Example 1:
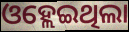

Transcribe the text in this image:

ଓହ୍ଲେଇଥିଲା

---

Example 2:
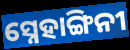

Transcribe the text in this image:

ସ୍ନେହାଙ୍ଗିନୀ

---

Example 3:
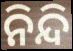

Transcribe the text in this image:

ନିନ୍ଦି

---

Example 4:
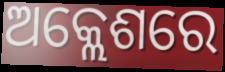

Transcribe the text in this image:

ଅକ୍ଲେଶରେ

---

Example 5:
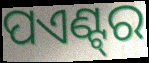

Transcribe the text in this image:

ପଏଣ୍ଟ୍‌ର